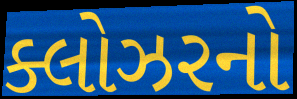
ક્લોઝરનો